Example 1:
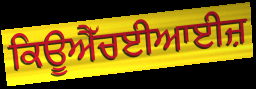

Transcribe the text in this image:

ਕਿਊਐੱਚਈਆਈਜ਼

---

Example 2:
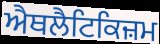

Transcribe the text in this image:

ਐਥਲੈਟਿਕਿਜ਼ਮ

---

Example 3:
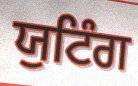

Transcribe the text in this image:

ਯੁਟਿੰਗ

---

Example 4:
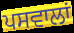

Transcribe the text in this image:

ਪਸਵਾਲਾਂ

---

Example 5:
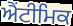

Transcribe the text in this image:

ਐਂਟੀਮਿਕ